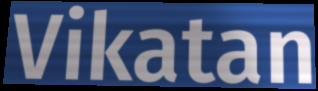
Vikatan